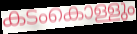
കടംകൊള്ളും